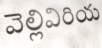
వెల్లివిరియ